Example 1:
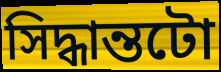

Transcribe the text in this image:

সিদ্ধান্তটো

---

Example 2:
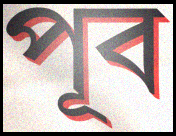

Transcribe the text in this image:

পূব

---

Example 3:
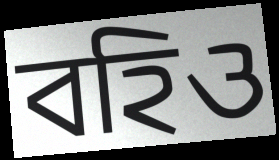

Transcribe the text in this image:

বহিও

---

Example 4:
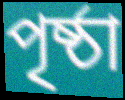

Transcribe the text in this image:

পৃষ্ঠা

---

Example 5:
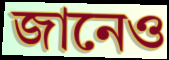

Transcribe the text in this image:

জানেও